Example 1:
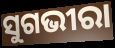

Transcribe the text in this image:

ସୁଗଭୀରା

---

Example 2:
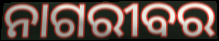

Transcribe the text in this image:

ନାଗରୀବର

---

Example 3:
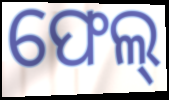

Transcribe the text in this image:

ଫେଲ୍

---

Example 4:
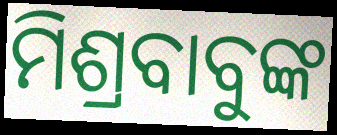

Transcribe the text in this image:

ମିଶ୍ରବାବୁଙ୍କ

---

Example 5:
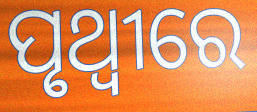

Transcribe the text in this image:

ପୃଥ୍ୱୀରେ